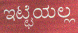
ಇಟ್ಟೆಯಲ್ಲ